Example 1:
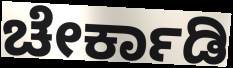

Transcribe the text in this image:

ಚೇರ್ಕಾಡಿ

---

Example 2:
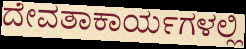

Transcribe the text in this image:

ದೇವತಾಕಾರ್ಯಗಳಲ್ಲಿ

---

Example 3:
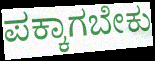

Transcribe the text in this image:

ಪಕ್ಕಾಗಬೇಕು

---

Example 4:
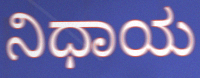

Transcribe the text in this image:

ನಿಧಾಯ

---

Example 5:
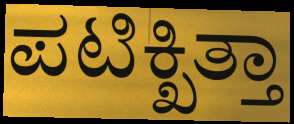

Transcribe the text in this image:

ಪಟಿಕ್ಖಿತ್ತಾ